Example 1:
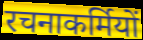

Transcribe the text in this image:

रचनाकर्मियों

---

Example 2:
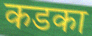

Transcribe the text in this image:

कडका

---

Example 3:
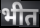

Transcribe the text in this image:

भीत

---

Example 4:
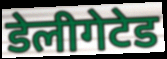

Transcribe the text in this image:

डेलीगेटेड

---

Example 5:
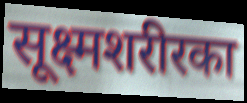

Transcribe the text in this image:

सूक्ष्मशरीरका